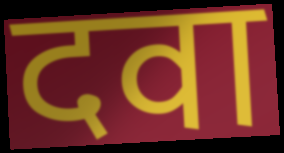
दवा